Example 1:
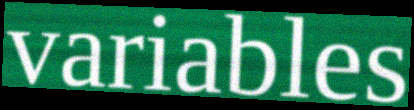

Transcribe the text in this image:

variables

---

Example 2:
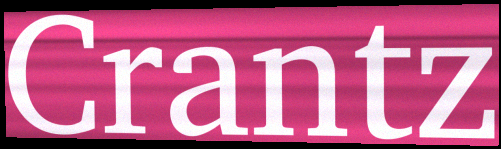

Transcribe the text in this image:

Crantz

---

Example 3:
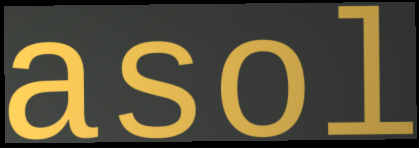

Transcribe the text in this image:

asol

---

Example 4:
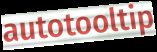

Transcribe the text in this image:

autotooltip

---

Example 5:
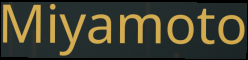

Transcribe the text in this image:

Miyamoto